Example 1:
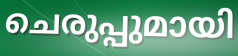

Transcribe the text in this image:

ചെരുപ്പുമായി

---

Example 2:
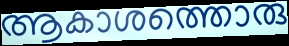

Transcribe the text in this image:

ആകാശത്തൊരു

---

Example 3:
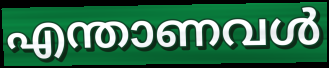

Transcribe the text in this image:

എന്താണവൾ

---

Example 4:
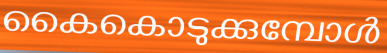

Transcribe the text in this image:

കൈകൊടുക്കുമ്പോൾ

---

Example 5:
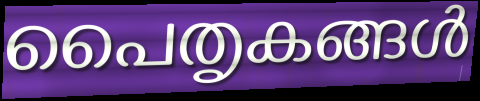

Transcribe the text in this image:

പൈതൃകങ്ങൾ